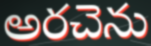
అరచెను